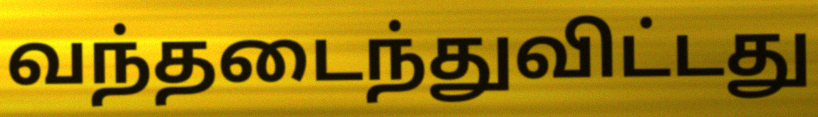
வந்தடைந்துவிட்டது